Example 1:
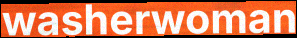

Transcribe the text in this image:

washerwoman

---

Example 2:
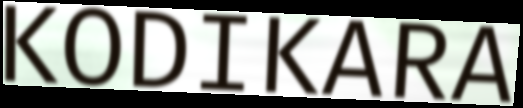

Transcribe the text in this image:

KODIKARA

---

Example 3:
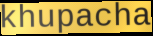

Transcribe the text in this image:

khupacha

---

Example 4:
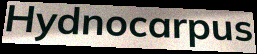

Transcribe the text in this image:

Hydnocarpus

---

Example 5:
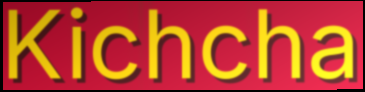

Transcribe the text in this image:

Kichcha